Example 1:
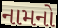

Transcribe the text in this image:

નામનો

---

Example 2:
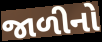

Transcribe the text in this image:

જાળીનો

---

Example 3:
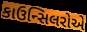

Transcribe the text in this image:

કાઉન્સિલરોએ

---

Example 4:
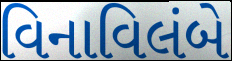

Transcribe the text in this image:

વિનાવિલંબે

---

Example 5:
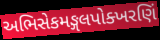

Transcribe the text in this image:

અભિસેકમઙ્ગલપોક્ખરણિં